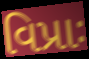
વિપ્રાઃ